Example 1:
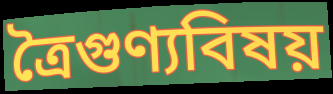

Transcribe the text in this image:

ত্রৈগুণ্যবিষয়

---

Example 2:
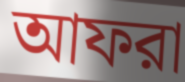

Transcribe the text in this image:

আফরা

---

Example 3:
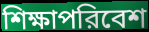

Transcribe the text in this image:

শিক্ষাপরিবেশ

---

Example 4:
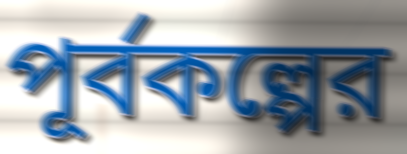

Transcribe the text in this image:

পূর্বকল্পের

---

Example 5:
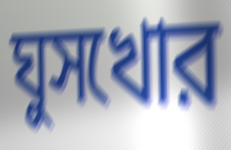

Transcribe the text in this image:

ঘুসখোর